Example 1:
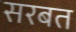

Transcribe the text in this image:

सरबत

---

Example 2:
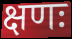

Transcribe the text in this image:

क्षणः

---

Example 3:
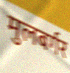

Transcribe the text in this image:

मुलबर्गर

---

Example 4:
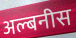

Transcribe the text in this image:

अल्बनीस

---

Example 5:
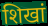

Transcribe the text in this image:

शिखां